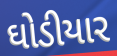
ઘોડીયાર